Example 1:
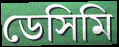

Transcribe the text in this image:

ডেসিমি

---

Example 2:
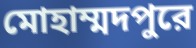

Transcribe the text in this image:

মোহাম্মদপুরে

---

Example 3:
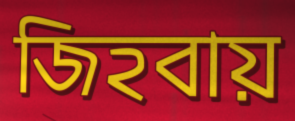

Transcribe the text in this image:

জিহবায়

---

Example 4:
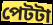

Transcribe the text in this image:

পেটটা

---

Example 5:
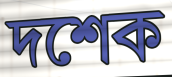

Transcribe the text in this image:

দশেক